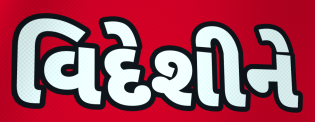
વિદેશીને